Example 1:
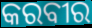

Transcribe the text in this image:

କରବୀର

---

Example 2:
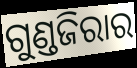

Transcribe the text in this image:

ଗୁଣ୍ଡଜିରାର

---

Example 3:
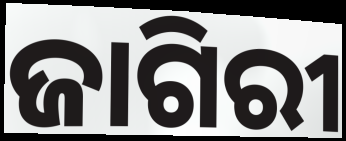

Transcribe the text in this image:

ଜାଗିରୀ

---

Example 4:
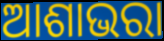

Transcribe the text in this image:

ଆଶାଭରା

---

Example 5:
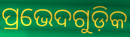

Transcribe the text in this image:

ପ୍ରଭେଦଗୁଡ଼ିକ